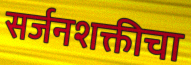
सर्जनशक्तीचा